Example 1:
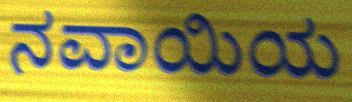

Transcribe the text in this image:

ನವಾಯಿಯ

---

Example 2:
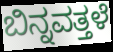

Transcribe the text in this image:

ಬಿನ್ನವತ್ತಳೆ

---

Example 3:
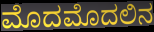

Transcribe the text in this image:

ಮೊದಮೊದಲಿನ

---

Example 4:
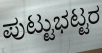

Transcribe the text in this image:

ಪುಟ್ಟುಭಟ್ಟರ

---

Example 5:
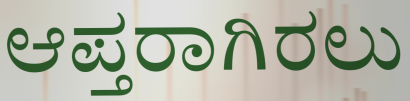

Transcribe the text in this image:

ಆಪ್ತರಾಗಿರಲು